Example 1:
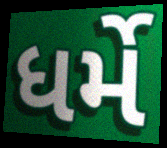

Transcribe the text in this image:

ધર્મે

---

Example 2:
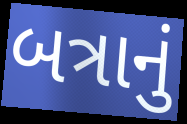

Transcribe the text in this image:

બત્રાનું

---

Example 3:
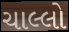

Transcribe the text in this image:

ચાલ્લો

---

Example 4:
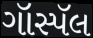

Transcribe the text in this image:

ગૉસ્પૅલ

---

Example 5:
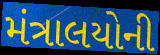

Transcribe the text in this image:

મંત્રાલયોની